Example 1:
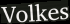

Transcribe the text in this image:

Volkes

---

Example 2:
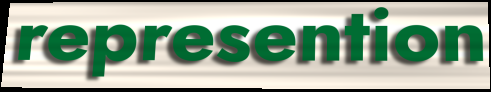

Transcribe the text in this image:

represention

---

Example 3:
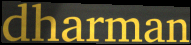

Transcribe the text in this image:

dharman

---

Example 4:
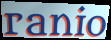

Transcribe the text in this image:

ranio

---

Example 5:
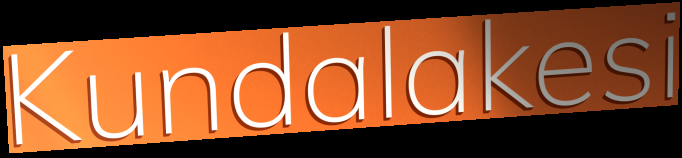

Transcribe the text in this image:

Kundalakesi